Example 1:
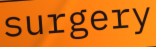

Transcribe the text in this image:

surgery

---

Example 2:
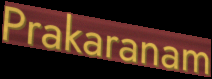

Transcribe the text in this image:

Prakaranam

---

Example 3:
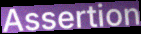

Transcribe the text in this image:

Assertion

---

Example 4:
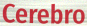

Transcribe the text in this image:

Cerebro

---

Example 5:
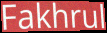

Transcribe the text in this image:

Fakhrul